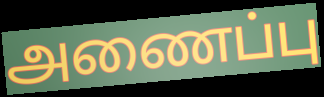
அணைப்பு